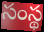
సంస్థ